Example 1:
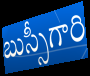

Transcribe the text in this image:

బుస్సీగారి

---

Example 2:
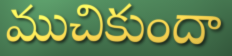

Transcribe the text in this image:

ముచికుందా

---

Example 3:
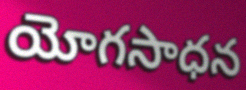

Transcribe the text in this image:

యోగసాధన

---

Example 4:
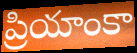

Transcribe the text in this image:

ప్రియాంకా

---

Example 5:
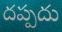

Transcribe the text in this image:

దప్పదు